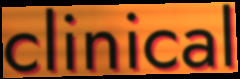
clinical